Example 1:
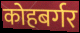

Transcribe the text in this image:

कोहबर्गर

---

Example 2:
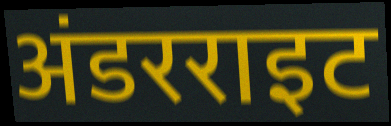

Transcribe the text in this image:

अंडरराइट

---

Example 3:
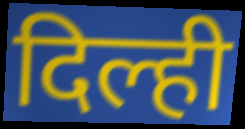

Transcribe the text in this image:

दिल्ही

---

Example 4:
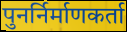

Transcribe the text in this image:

पुनर्निर्माणकर्ता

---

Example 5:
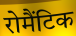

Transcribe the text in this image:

रोमैंटिक